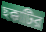
ছক্কাটির